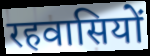
रहवासियों